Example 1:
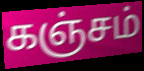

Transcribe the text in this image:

கஞ்சம்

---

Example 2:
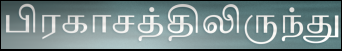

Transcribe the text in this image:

பிரகாசத்திலிருந்து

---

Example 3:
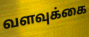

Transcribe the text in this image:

வளவுக்கை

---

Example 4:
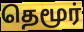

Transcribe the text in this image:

தெமூர்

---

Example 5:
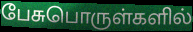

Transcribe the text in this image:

பேசுபொருள்களில்